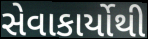
સેવાકાર્યોથી